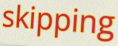
skipping